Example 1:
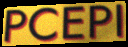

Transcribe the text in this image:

PCEPI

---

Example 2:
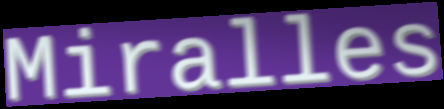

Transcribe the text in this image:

Miralles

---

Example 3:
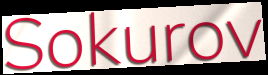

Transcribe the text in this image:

Sokurov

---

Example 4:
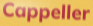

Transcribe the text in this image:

Cappeller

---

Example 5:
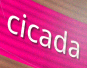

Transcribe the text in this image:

cicada